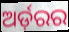
ଅର୍ଡ଼ରର